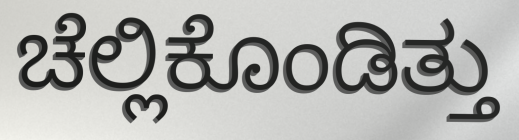
ಚೆಲ್ಲಿಕೊಂಡಿತ್ತು